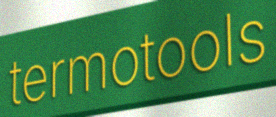
termotools